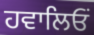
ਹਵਾਲਿਓਂ